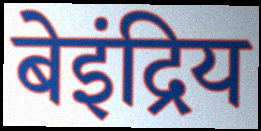
बेइंद्रिय